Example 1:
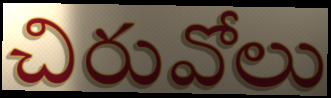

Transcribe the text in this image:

చిరువోలు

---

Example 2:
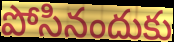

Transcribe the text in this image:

పోసినందుకు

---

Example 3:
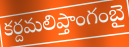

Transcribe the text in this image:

కర్దమలిప్తాంగంబై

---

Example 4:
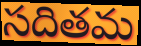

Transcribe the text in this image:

సదితమ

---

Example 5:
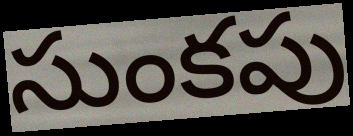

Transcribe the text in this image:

సుంకపు